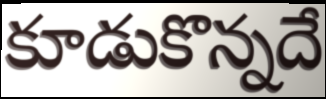
కూడుకొన్నదే